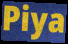
Piya